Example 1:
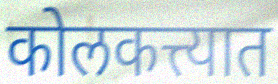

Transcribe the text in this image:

कोलकत्त्यात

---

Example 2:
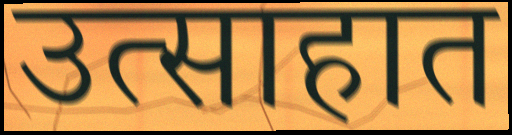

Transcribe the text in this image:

उत्साहात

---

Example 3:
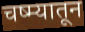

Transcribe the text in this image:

चष्म्यातून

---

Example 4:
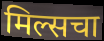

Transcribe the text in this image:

मिल्सचा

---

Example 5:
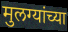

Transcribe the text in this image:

मुलग्यांच्या